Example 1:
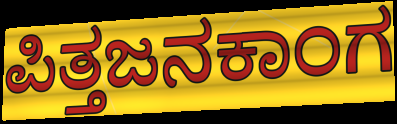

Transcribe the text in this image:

ಪಿತ್ತಜನಕಾಂಗ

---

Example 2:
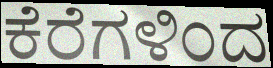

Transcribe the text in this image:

ಕೆರೆಗಳಿಂದ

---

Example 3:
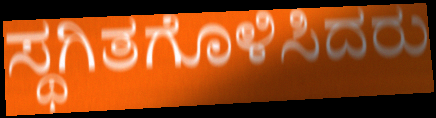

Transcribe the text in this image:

ಸ್ಥಗಿತಗೊಳಿಸಿದರು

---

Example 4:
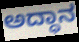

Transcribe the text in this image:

ಅದ್ಧಾನ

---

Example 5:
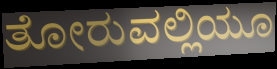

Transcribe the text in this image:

ತೋರುವಲ್ಲಿಯೂ